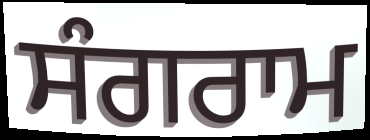
ਸੰਗਰਾਮ